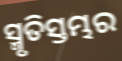
ସ୍ମୃତିସ୍ତମ୍ଭର